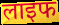
लाइफ